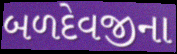
બળદેવજીના